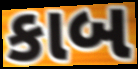
કાબ